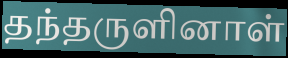
தந்தருளினாள்